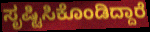
ಸೃಷ್ಟಿಸಿಕೊಂಡಿದ್ದಾರೆ